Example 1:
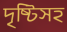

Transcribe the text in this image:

দৃষ্টিসহ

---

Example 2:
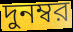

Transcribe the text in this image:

দুনম্বর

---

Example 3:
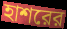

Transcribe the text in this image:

হাশরের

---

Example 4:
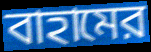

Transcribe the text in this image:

বাহামের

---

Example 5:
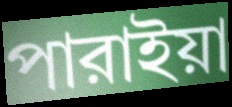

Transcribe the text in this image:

পারাইয়া